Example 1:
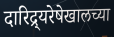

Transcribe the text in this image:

दारिद्र्यरेषेखालच्या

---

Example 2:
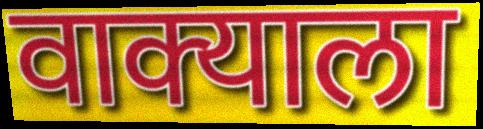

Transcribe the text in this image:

वाक्‍याला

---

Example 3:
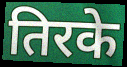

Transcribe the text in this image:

तिरके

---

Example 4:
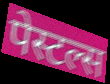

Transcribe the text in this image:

पेस्टल्स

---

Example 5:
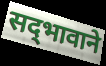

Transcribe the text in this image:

सद्‌भावाने